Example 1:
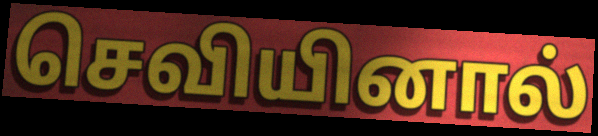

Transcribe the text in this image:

செவியினால்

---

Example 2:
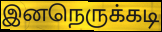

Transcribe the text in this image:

இனநெருக்கடி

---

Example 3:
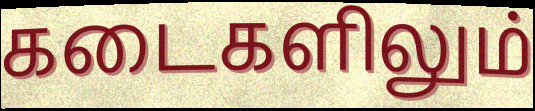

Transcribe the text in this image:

கடைகளிலும்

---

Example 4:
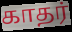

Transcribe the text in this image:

காதர்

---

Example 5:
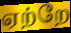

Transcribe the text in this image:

ஏற்றே